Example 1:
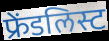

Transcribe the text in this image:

फ्रेंडलिस्ट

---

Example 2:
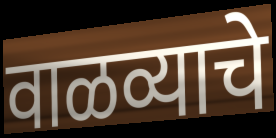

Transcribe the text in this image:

वाळव्याचे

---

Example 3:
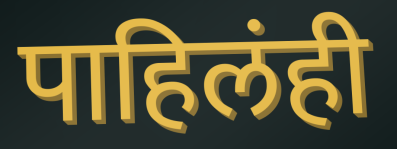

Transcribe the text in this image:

पाहिलंही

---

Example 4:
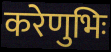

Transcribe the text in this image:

करेणुभिः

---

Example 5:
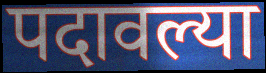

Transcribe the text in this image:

पदावल्या